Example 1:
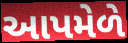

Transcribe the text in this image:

આપમેળે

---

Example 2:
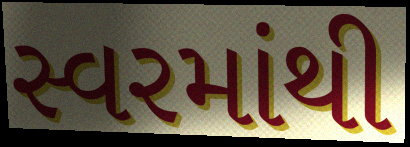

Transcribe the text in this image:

સ્વરમાંથી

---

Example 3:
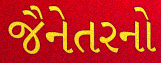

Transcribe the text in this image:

જૈનેતરનો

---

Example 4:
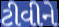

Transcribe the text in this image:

ટીવીને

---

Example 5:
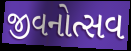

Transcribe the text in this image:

જીવનોત્સવ